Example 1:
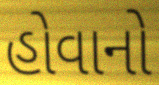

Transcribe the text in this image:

હોવાનો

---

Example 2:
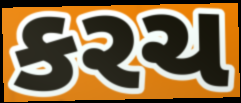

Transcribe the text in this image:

કરચ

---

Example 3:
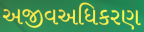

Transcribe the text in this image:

અજીવઅધિકરણ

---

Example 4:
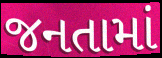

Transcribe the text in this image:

જનતામાં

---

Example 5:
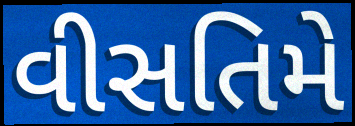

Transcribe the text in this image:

વીસતિમે